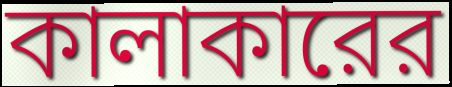
কালাকারের